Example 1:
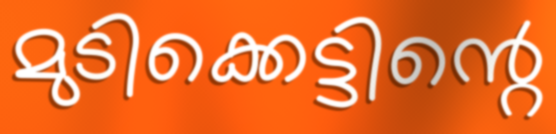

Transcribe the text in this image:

മുടിക്കെട്ടിന്റെ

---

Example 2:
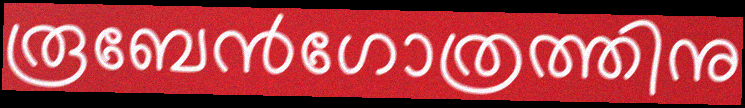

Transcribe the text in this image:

രൂബേൻഗോത്രത്തിനു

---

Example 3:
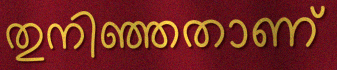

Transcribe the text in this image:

തുനിഞ്ഞതാണ്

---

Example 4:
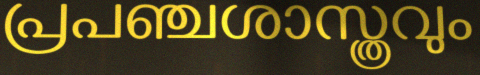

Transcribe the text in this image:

പ്രപഞ്ചശാസ്ത്രവും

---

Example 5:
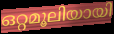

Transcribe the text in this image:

ഒറ്റമൂലിയായി